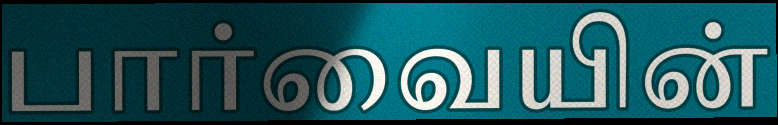
பார்வையின்